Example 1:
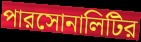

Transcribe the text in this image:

পারসোনালিটির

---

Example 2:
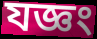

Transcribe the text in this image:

যজ্ঞং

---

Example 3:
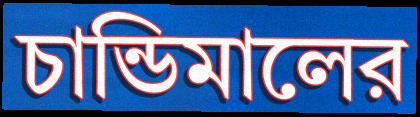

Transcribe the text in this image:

চান্ডিমালের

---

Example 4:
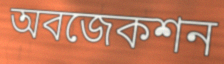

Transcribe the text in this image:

অবজেকশন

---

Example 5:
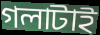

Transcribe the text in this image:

গলাটাই